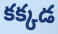
కక్కడ